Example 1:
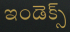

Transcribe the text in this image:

ఇండెక్స్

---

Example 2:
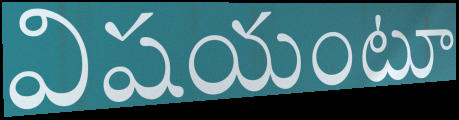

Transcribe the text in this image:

విషయంటూ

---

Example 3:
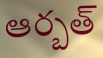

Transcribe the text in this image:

ఆర్బత్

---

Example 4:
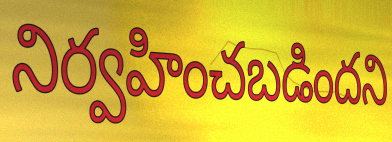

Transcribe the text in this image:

నిర్వహించబడిందని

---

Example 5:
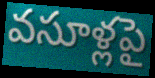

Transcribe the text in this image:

వసూళ్లపై